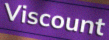
Viscount